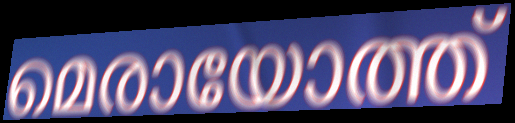
മെരായോത്ത്